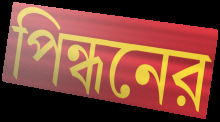
পিন্ধনের